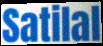
Satilal